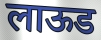
लाऊड